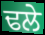
ਢਲੇ